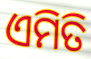
ଏମିତି